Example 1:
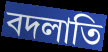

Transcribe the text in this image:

বদলাতি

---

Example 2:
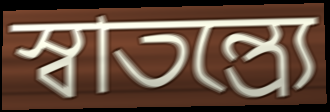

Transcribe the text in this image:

স্বাতন্ত্র্যে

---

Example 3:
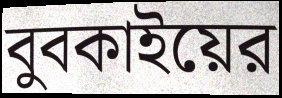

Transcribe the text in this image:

বুবকাইয়ের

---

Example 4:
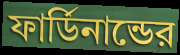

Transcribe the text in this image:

ফার্ডিনান্ডের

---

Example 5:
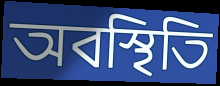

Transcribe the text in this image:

অবস্থিতি